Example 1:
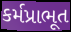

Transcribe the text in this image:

કર્મપ્રાભૂત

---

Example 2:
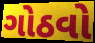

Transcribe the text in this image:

ગોઠવો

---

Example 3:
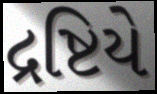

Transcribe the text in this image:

દ્રષ્ટિયે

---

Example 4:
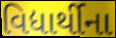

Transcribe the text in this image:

વિદ્યાર્થીના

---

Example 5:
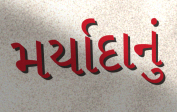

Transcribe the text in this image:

મર્યાદાનું